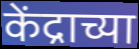
केंद्राच्या